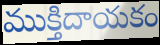
ముక్తిదాయకం